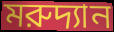
মরুদ্যান